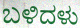
ಬಳಿದಳು